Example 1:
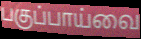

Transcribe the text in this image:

பகுப்பாய்வை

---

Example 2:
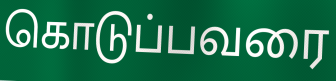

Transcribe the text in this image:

கொடுப்பவரை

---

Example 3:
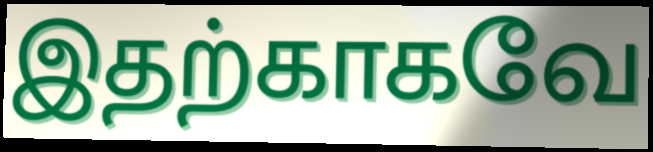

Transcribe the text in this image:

இதற்காகவே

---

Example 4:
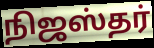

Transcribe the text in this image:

நிஜஸ்தர்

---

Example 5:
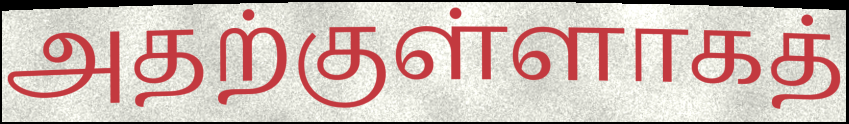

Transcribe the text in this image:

அதற்குள்ளாகத்